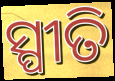
ସ୍ପୀତି